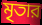
মৃতার